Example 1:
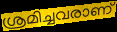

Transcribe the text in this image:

ശ്രമിച്ചവരാണ്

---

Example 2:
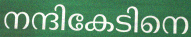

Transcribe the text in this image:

നന്ദികേടിനെ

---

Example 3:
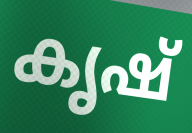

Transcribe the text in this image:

കൃഷ്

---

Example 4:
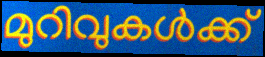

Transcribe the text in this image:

മുറിവുകൾക്ക്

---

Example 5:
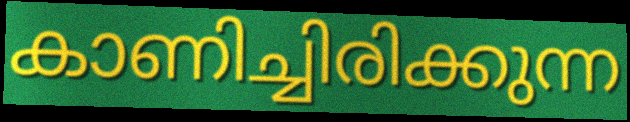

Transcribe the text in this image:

കാണിച്ചിരിക്കുന്ന